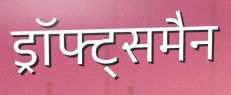
ड्रॉफ्ट्समैन